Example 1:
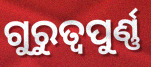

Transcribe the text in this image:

ଗୁରୁତ୍ୱପୁର୍ଣ୍ଣ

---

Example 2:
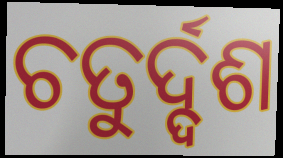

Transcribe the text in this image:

ଚତୁର୍ଦ୍ଦଶ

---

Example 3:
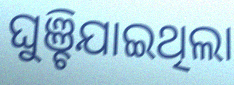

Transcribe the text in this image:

ଘୁଞ୍ଚିଯାଇଥିଲା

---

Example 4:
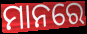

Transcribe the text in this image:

ମାନରେ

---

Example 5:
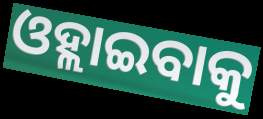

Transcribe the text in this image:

ଓହ୍ଲାଇବାକୁ